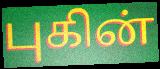
புகின்